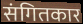
संगितकार